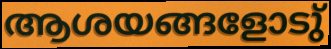
ആശയങ്ങളോടു്